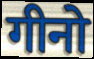
गीनो